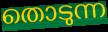
തൊടുന്ന